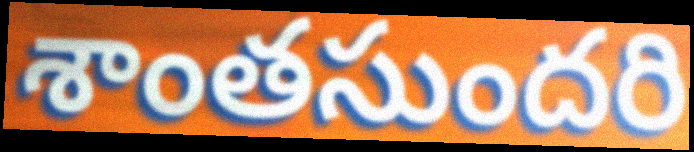
శాంతసుందరి